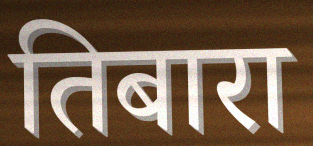
तिबारा